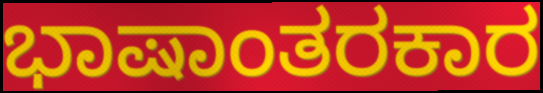
ಭಾಷಾಂತರಕಾರ